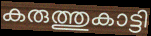
കരുത്തുകാട്ടി